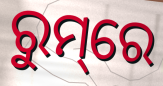
ରୁମ୍‌ରେ